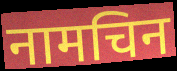
नामचिन